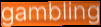
gambling